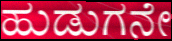
ಹುಡುಗನೇ